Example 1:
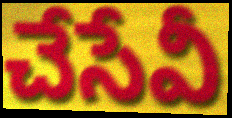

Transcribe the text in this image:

చేసేవీ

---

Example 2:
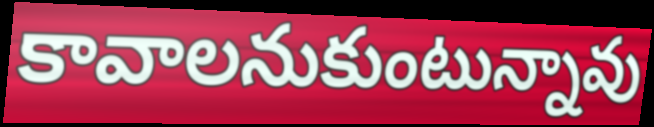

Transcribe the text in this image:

కావాలనుకుంటున్నావు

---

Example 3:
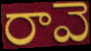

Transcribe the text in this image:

రావె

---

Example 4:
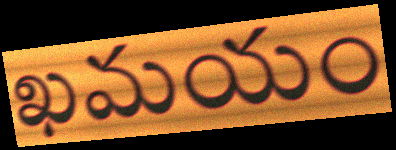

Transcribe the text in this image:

ఖమయం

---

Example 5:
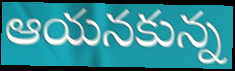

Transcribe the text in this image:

ఆయనకున్న